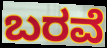
ಬರವೆ